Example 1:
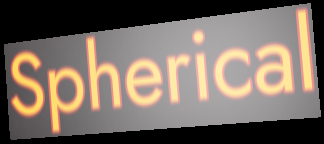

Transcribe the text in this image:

Spherical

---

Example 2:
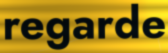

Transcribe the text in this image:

regarde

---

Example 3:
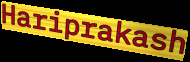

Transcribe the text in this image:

Hariprakash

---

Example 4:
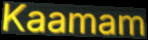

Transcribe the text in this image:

Kaamam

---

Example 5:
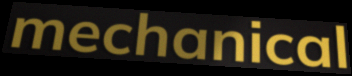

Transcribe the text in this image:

mechanical